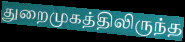
துறைமுகத்திலிருந்த